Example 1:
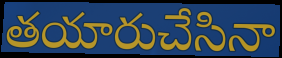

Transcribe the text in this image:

తయారుచేసినా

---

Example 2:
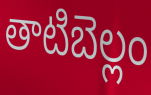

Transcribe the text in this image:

తాటిబెల్లం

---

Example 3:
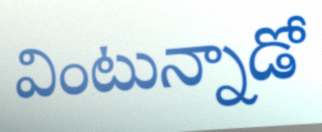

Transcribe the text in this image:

వింటున్నాడో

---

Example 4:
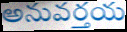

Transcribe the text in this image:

అనువర్తయ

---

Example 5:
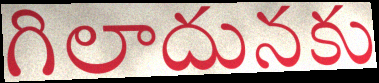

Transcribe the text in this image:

గిలాదునకు